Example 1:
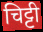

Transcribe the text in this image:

चिट्टी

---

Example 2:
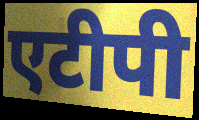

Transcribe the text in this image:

एटीपी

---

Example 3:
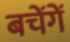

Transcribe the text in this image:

बचेंगें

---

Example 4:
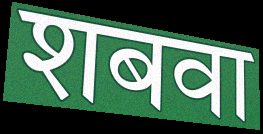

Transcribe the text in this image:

शबवा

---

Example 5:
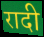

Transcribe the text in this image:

रादी